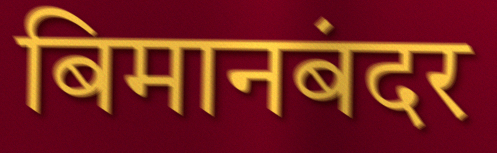
बिमानबंदर